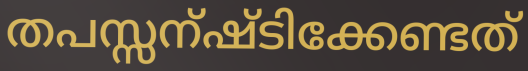
തപസ്സന്ഷ്ടിക്കേണ്ടത്